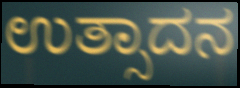
ಉತ್ಸಾದನ